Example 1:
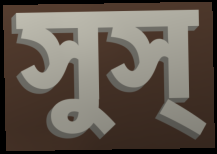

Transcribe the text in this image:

সুস্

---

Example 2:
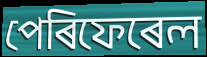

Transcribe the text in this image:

পেৰিফেৰেল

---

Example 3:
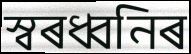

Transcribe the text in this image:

স্বৰধ্বনিৰ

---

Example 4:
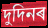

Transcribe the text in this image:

দুদিনৰ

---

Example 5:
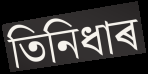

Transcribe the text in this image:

তিনিধাৰ